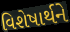
વિશેષાર્થને